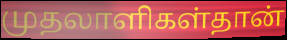
முதலாளிகள்தான்